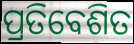
ପ୍ରତିବେଶିତ